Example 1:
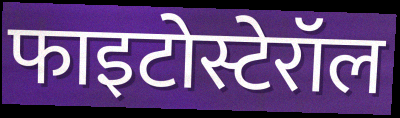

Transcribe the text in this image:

फाइटोस्टेरॉल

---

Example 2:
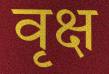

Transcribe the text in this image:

वृक्ष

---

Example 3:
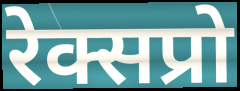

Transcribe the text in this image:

रेक्सप्रो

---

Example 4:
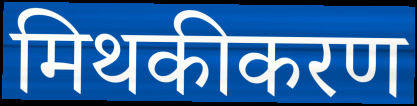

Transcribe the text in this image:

मिथकीकरण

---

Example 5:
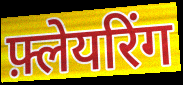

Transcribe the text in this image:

फ़्लेयरिंग